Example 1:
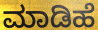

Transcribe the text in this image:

ಮಾಡಿಹೆ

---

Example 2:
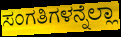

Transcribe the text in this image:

ಸಂಗತಿಗಳನ್ನೆಲ್ಲಾ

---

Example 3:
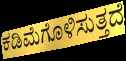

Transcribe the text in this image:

ಕಡಿಮೆಗೊಳಿಸುತ್ತದೆ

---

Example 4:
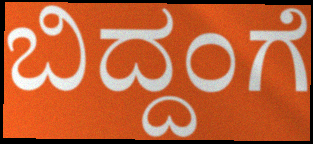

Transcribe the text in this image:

ಬಿದ್ದಂಗೆ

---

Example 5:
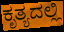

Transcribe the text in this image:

ಕೃತ್ಯದಲ್ಲಿ